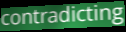
contradicting